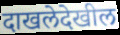
दाखलेदेखील